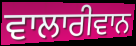
ਵਾਲਾਰੀਵਾਨ